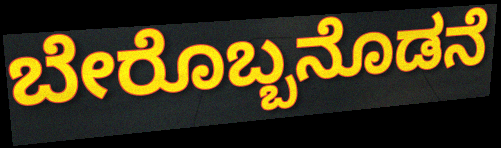
ಬೇರೊಬ್ಬನೊಡನೆ